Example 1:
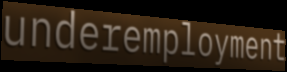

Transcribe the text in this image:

underemployment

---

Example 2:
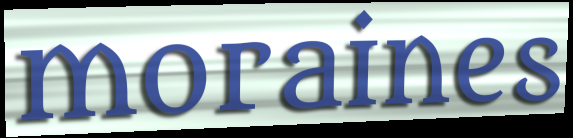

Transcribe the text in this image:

moraines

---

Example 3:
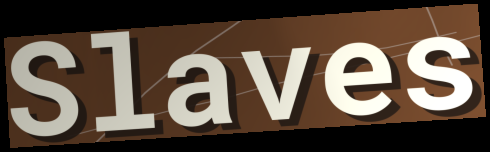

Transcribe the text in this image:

Slaves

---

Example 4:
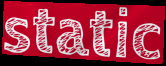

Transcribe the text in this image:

static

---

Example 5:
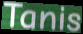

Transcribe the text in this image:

Tanis